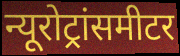
न्यूरोट्रांसमीटर